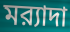
মর‍্যাদা